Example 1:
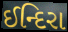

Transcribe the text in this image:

ઈન્દિરા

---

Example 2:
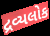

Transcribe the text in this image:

દ્રવ્યલોક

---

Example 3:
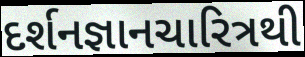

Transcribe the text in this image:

દર્શનજ્ઞાનચારિત્રથી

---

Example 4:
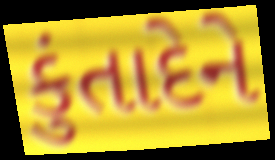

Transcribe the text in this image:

કુંતાદેને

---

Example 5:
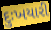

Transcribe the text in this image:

દુઃખયારી